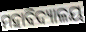
ମହାବିଦ୍ୟାଳୟ